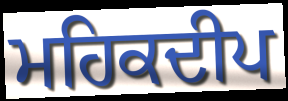
ਮਹਿਕਦੀਪ